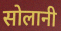
सोलानी